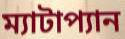
ম্যাটাপ্যান